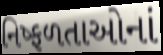
નિષ્ફળતાઓનાં